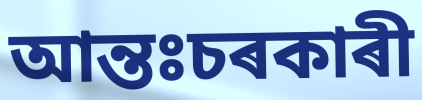
আন্তঃচৰকাৰী